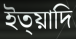
ইত্য়াদি